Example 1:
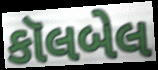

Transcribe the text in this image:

કૉલબેલ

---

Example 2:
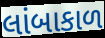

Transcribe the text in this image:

લાંબાકાળ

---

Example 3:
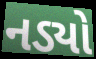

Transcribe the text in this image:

નડ્યો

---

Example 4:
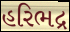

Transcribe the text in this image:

હરિભદ્ર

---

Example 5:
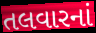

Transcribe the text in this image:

તલવારનાં